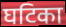
घटिका